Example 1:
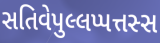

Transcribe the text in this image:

સતિવેપુલ્લપ્પત્તસ્સ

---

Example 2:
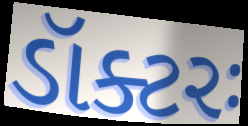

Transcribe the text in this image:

ડૉક્ટરઃ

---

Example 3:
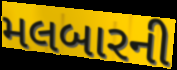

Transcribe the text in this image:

મલબારની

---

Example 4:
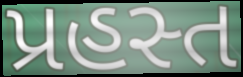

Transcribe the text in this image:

પ્રહસ્ત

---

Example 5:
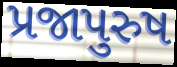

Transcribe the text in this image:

પ્રજાપુરુષ